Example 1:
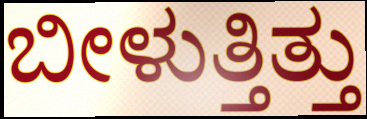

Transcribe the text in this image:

ಬೀಳುತ್ತಿತ್ತು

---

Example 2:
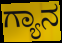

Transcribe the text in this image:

ಗ್ಯಾನ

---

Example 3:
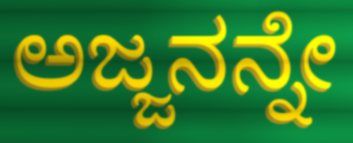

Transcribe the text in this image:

ಅಜ್ಜನನ್ನೇ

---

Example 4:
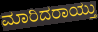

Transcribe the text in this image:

ಮಾರಿದರಾಯ್ತು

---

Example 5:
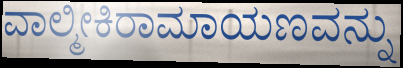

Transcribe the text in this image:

ವಾಲ್ಮೀಕಿರಾಮಾಯಣವನ್ನು